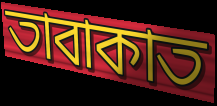
তাবাকাত